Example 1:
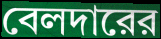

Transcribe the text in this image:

বেলদারের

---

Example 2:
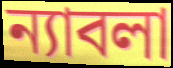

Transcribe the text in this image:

ন্যাবলা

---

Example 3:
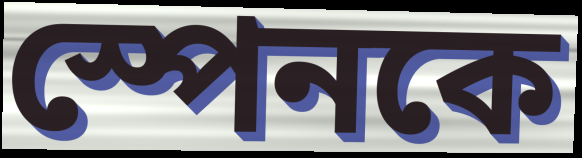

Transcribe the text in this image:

স্পেনকে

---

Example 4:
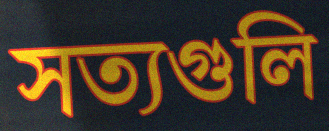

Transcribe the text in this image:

সত্যগুলি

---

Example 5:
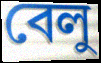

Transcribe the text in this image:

বেলু